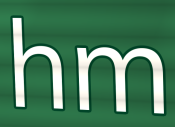
hm